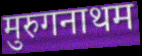
मुरुगनाथम